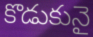
కొడుకునై